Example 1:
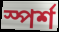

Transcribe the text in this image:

স্পর্শ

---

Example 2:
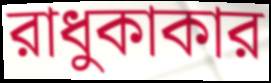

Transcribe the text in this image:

রাধুকাকার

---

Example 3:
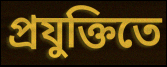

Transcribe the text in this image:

প্রযুক্তিতে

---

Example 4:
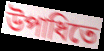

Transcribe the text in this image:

উপাধিতে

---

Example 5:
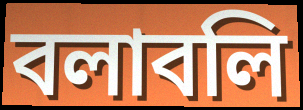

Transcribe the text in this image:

বলাবলি